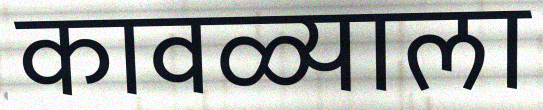
कावळ्याला